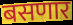
बसणार